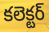
కలెక్టర్